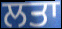
ਲਤਾ